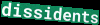
dissidents